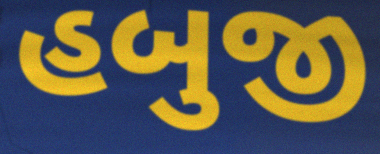
હબુજી